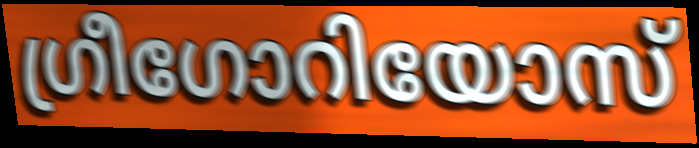
ഗ്രീഗോറിയോസ്